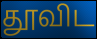
தூவிட